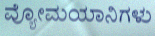
ವ್ಯೋಮಯಾನಿಗಳು